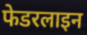
फेडरलाइन